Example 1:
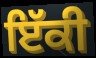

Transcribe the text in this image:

ਇੱਕੀ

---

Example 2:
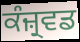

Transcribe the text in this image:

ਕੰਜ਼੍ਰਵਡ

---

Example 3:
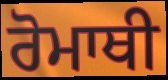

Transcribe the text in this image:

ਰੋਮਾਥੀ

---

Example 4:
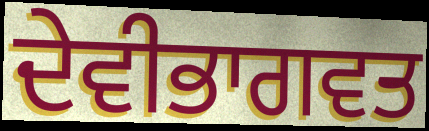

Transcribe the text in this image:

ਦੇਵੀਭਾਗਵਤ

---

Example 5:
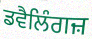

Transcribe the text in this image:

ਡਵੈਲਿੰਗਜ਼